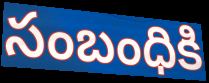
సంబంధికి